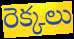
రెక్కలు